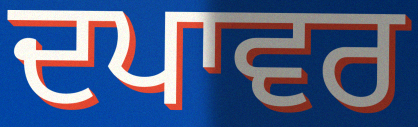
ਦਪਾਵਰ